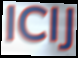
ICIJ